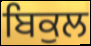
ਬਿਕੁਲ